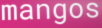
mangos